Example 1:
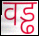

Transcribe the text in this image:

वड्ढ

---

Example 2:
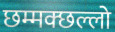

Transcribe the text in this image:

छम्मक्छल्लो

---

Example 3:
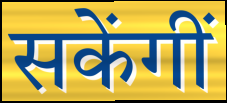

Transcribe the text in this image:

सकेंगीं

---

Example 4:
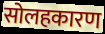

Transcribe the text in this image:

सोलहकारण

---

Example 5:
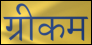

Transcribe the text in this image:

ग्रीकम